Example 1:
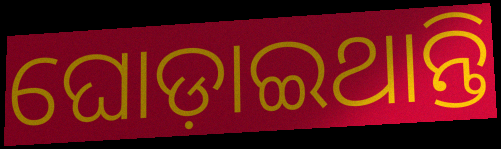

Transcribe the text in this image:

ଘୋଡ଼ାଇଥାନ୍ତି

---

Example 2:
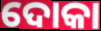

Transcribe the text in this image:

ଦୋକା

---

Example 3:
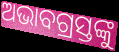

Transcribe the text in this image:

ଅଭାବଗ୍ରସ୍ତଙ୍କୁ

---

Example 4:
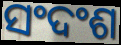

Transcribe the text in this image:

ସଂଦଂଶ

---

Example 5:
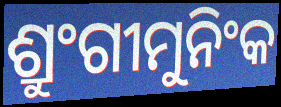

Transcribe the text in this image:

ଶ୍ରୁଂଗୀମୁନିଂକ